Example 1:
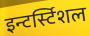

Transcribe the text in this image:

इन्टर्स्टिशल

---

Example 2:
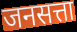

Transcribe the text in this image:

जनसत्ता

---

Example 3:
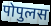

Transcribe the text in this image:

पोपुलस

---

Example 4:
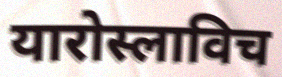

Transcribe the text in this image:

यारोस्लाविच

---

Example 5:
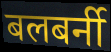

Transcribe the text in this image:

बलबर्नी